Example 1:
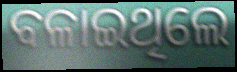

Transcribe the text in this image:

ବଳାଇଥିଲେ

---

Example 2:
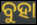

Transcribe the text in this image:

ବୁହା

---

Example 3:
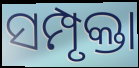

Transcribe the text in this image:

ସମ୍ପୃକ୍ତା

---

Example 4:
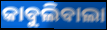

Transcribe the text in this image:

କାବୁଲିବାଲା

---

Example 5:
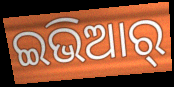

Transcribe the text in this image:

ଇଭିଆର୍